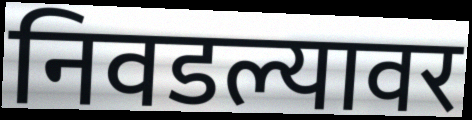
निवडल्यावर